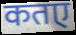
कतए